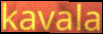
kavala